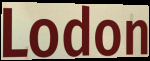
Lodon